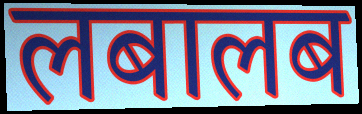
लबालब